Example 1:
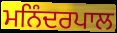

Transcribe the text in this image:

ਮਨਿੰਦਰਪਾਲ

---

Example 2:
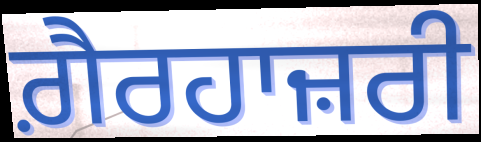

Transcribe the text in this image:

ਗ਼ੈਰਹਾਜ਼ਰੀ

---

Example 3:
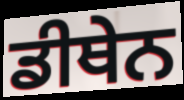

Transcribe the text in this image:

ਡੀਥੇਨ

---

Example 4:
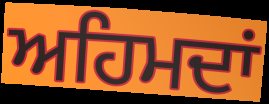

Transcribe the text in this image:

ਅਹਿਮਦਾਂ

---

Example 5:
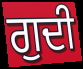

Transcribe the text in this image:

ਗੁਦੀ